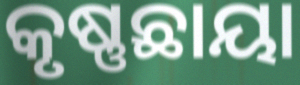
କୃଷ୍ଣଛାୟା